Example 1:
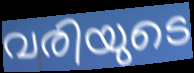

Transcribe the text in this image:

വരിയുടെ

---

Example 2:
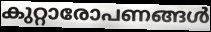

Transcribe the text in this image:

കുറ്റാരോപണങ്ങൾ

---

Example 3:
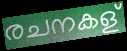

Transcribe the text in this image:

രചനകള്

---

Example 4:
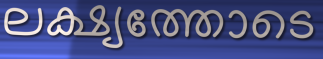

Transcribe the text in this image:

ലക്ഷ്യത്തോടെ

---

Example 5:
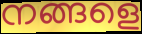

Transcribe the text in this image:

നങ്ങളെ